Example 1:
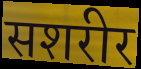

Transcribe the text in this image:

सशरीर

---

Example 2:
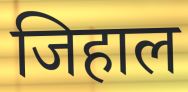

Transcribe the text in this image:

जिहाल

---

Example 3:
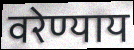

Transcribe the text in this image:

वरेण्याय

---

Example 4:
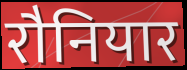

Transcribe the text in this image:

रौनियार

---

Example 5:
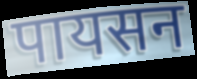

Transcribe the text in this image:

पायसन